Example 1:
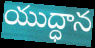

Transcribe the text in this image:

యుద్ధాన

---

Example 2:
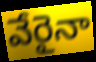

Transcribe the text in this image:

వేరైనా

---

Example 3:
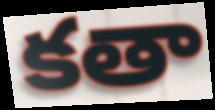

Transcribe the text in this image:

కతా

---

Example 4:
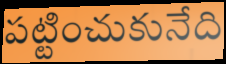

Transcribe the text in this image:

పట్టించుకునేది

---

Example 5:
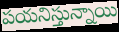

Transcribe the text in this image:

పయనిస్తున్నాయి